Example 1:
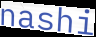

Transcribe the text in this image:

nashi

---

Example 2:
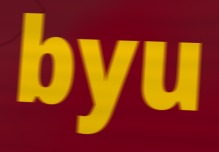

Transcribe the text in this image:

byu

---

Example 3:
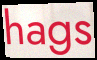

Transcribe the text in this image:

hags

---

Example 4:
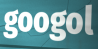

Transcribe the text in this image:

googol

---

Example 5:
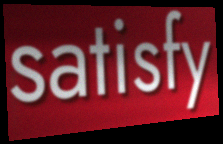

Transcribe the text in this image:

satisfy